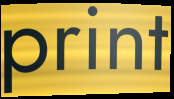
print